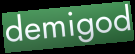
demigod